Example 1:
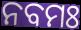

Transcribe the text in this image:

ନବମଃ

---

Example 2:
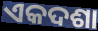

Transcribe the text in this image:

ଏକଦଶା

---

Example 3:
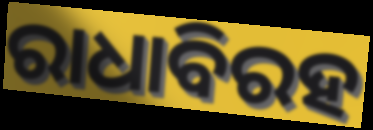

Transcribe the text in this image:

ରାଧାବିରହ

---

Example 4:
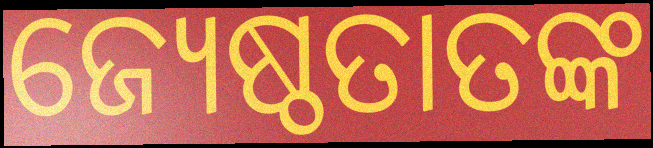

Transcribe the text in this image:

ଜ୍ୟେଷ୍ଠତାତଙ୍କ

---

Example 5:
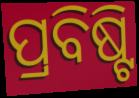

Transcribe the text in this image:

ପ୍ରବିଷ୍ଟି